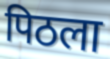
पिठला